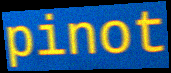
pinot